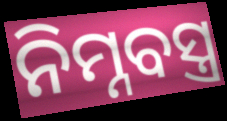
ନିମ୍ନବସ୍ତ୍ର